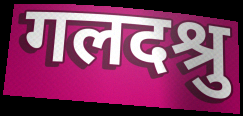
गलदश्रु